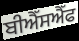
ਬੀਐੱਸਐੱਫ